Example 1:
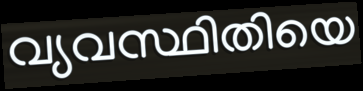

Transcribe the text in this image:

വ്യവസ്ഥിതിയെ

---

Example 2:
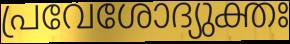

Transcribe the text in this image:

പ്രവേശോദ്യുക്തഃ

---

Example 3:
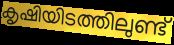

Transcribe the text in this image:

കൃഷിയിടത്തിലുണ്ട്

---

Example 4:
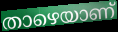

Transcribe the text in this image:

താഴെയാണ്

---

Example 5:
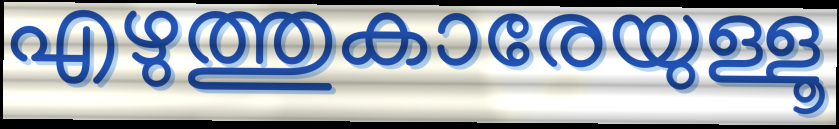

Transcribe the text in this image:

എഴുത്തുകാരേയുള്ളൂ